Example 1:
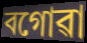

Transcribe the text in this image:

বগোৱা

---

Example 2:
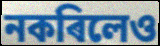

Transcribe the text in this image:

নকৰিলেও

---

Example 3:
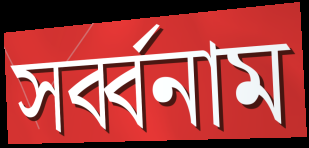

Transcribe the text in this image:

সৰ্ব্বনাম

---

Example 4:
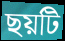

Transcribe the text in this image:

ছয়টি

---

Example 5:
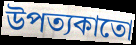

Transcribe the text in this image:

উপত্যকাতো